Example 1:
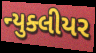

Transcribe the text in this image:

ન્યુક્લીયર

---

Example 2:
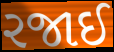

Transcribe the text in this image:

રજાઈ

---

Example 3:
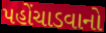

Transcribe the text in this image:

પહોંચાડવાનો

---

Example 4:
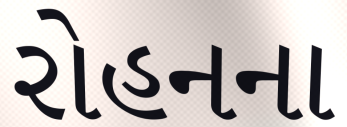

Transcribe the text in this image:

રોહનના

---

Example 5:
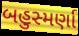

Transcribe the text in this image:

બહુસ્મર્ણા